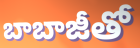
బాబాజీతో